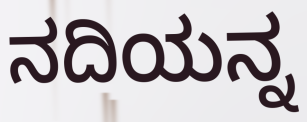
ನದಿಯನ್ನ